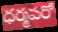
ధర్మపరో